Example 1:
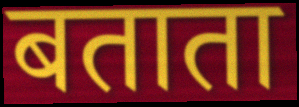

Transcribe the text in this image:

बताता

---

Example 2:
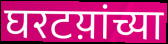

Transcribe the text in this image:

घरटय़ांच्या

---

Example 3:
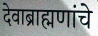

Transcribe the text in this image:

देवाब्राह्मणांचे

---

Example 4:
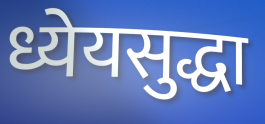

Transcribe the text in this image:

ध्येयसुद्धा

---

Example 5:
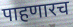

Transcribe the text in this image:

पाहणारच